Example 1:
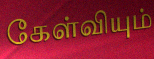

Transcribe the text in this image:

கேள்வியும்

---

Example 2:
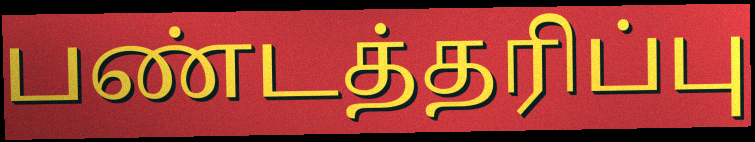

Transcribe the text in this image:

பண்டத்தரிப்பு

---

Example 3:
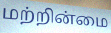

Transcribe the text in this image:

மற்றின்மை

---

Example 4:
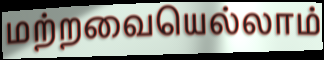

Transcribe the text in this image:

மற்றவையெல்லாம்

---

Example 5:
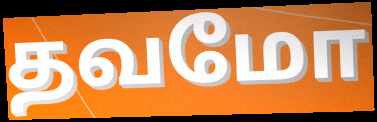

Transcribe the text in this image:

தவமோ